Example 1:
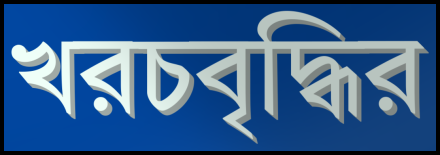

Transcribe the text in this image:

খরচবৃদ্ধির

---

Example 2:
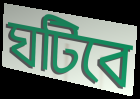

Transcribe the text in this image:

ঘটিবে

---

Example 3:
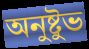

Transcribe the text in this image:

অনুষ্টুভ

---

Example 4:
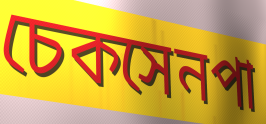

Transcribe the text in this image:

চেকসেনপা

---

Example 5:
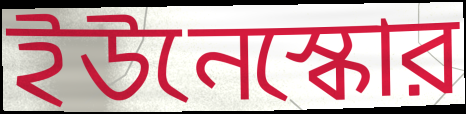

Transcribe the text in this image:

ইউনেস্কোর